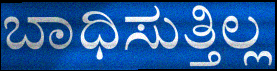
ಬಾಧಿಸುತ್ತಿಲ್ಲ